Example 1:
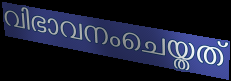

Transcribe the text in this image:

വിഭാവനംചെയ്തത്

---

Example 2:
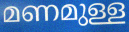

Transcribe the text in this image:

മണമുള്ള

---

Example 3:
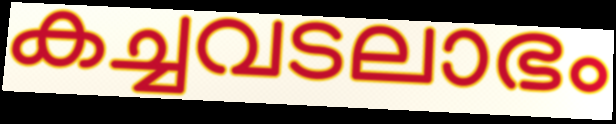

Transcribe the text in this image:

കച്ചവടലാഭം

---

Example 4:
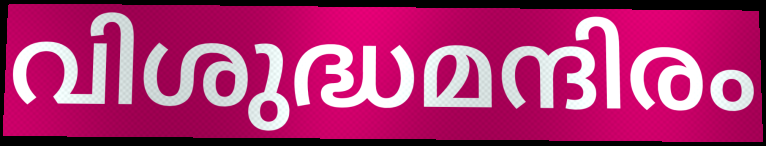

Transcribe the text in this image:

വിശുദ്ധമന്ദിരം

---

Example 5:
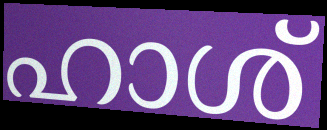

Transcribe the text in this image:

ഹാശ്